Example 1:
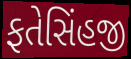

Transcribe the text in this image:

ફતેસિંહજી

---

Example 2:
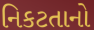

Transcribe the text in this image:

નિકટતાનો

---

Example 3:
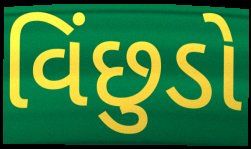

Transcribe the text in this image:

વિંછુડો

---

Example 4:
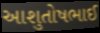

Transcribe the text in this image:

આશુતોષભાઈ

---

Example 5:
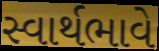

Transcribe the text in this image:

સ્વાર્થભાવે